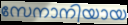
സേനാനിയായ